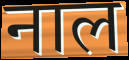
नाल